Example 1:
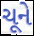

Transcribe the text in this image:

ચૂને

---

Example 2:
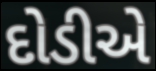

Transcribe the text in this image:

દોડીએ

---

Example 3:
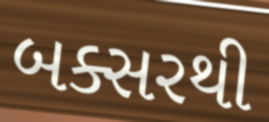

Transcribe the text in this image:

બક્સરથી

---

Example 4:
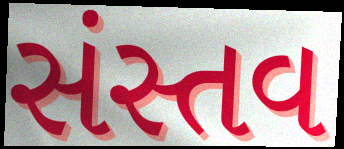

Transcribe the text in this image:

સંસ્તવ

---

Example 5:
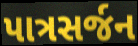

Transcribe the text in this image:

પાત્રસર્જન